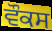
ਵੌਕਸ